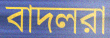
বাদলরা